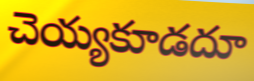
చెయ్యకూడదూ